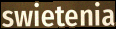
swietenia